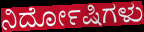
ನಿರ್ದೋಷಿಗಳು